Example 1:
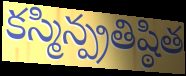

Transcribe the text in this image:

కస్మిన్ప్రతిష్ఠిత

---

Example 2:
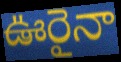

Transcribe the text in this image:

ఊరైనా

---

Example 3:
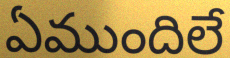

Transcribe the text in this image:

ఏముందిలే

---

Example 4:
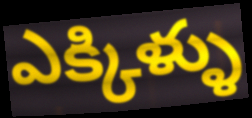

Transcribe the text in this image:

ఎక్కిళ్ళు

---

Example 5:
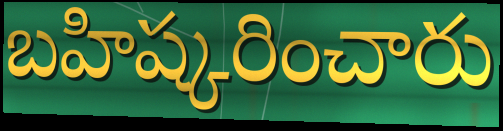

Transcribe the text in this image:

బహిష్కరించారు